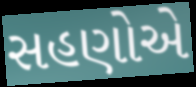
સહણોએ